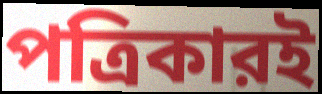
পত্রিকারই